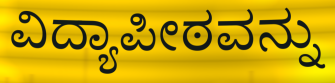
ವಿದ್ಯಾಪೀಠವನ್ನು